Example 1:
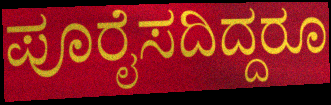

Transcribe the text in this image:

ಪೂರೈಸದಿದ್ದರೂ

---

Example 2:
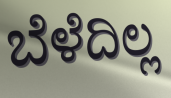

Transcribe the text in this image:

ಬೆಳೆದಿಲ್ಲ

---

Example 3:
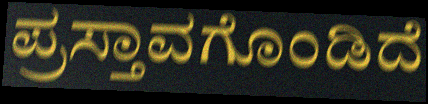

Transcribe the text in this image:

ಪ್ರಸ್ತಾವಗೊಂಡಿದೆ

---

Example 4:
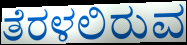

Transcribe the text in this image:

ತೆರಳಲಿರುವ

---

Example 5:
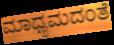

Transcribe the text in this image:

ಮಾಧ್ಯಮದಂತೆ